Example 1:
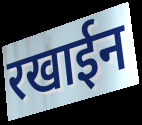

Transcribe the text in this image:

रखाईन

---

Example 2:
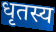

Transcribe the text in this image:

धृतस्य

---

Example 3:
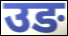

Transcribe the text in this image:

उङ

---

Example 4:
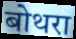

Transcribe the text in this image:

बोथरा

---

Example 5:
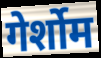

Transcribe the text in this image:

गेर्शोम